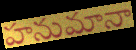
హనుమానా